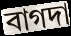
বাগদা